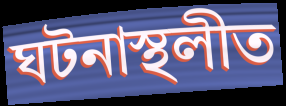
ঘটনাস্থলীত